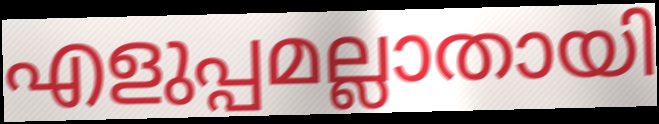
എളുപ്പമല്ലാതായി